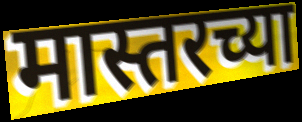
मास्तरच्या